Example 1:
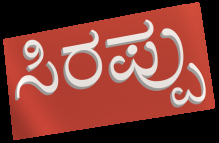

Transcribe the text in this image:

ಸಿರಪ್ಪು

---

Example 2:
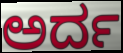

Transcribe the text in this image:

ಅರ್ದ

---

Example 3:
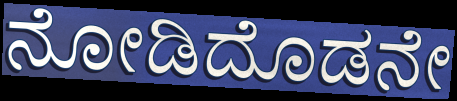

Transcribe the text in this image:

ನೋಡಿದೊಡನೇ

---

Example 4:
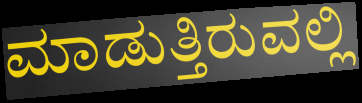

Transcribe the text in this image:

ಮಾಡುತ್ತಿರುವಲ್ಲಿ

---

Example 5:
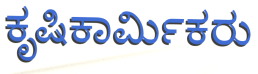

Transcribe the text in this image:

ಕೃಷಿಕಾರ್ಮಿಕರು